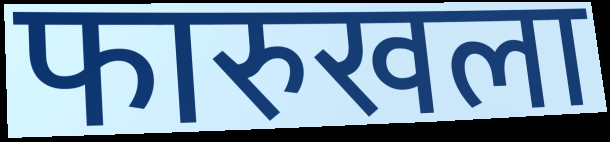
फारुखला